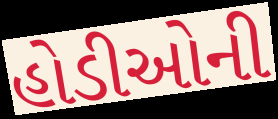
હોડીઓની